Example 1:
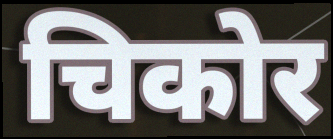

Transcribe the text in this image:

चिकोर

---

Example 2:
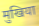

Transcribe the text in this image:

मुखिया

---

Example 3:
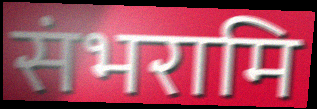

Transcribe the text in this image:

संभरामि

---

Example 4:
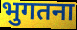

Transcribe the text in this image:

भुगतना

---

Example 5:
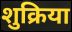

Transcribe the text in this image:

शुक्रिया